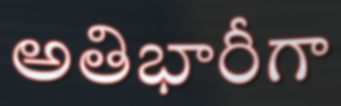
అతిభారీగా